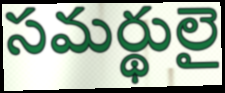
సమర్థులై